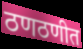
ठणठणीत